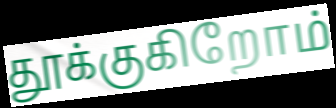
தூக்குகிறோம்